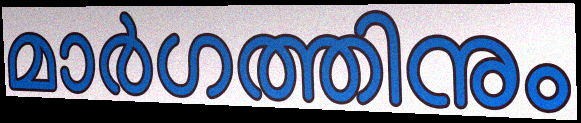
മാർഗത്തിനും